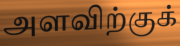
அளவிற்குக்